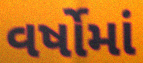
વર્ષોમાં